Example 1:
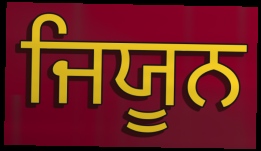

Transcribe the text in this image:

ਜਿਯੂਨ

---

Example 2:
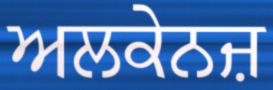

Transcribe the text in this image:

ਅਲਕੇਨਜ਼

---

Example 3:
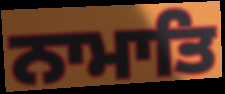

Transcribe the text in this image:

ਨਾਮਾਤਿ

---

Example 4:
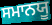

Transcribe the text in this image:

ਸਮਾਨਯੂ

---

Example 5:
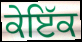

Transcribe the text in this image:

ਕੇਇੱਕ